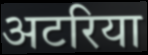
अटरिया